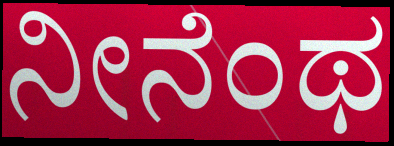
ನೀನೆಂಥ